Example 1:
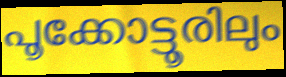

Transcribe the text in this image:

പൂക്കോട്ടൂരിലും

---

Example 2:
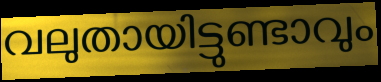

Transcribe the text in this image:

വലുതായിട്ടുണ്ടാവും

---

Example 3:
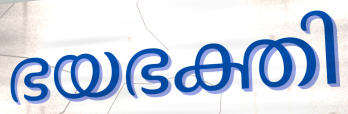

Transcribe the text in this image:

ഭയഭക്തി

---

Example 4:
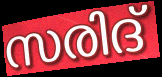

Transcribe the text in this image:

സരിദ്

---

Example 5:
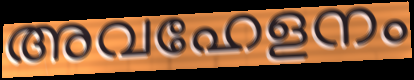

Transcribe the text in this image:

അവഹേളനം